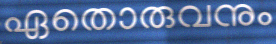
ഏതൊരുവനും